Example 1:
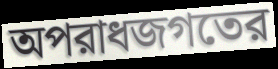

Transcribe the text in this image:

অপরাধজগতের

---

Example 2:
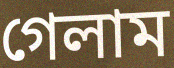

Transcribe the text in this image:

গেলাম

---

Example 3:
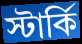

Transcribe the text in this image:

স্টার্কি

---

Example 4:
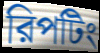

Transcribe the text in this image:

রিপটিং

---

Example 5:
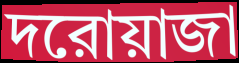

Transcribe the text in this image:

দরোয়াজা